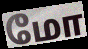
மோ